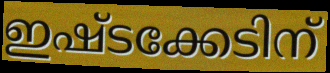
ഇഷ്ടക്കേടിന്